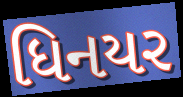
ધિનયર